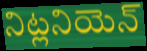
నిట్లనియెన్